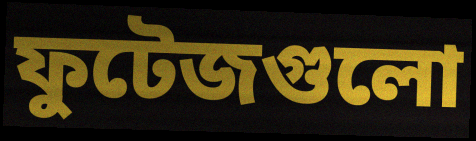
ফুটেজগুলো